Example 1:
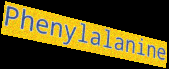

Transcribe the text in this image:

Phenylalanine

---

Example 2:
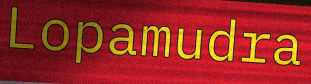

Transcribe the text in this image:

Lopamudra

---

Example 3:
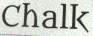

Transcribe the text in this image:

Chalk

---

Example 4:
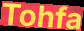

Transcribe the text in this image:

Tohfa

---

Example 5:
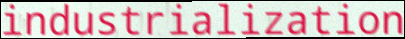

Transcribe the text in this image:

industrialization